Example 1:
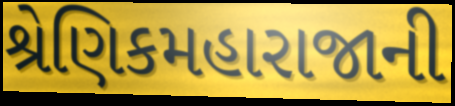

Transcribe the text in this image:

શ્રેણિકમહારાજાની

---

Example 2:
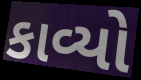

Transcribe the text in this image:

કાવ્યો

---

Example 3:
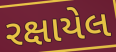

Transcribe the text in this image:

રક્ષાયેલ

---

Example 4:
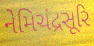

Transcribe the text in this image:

નેમિચંદ્રસૂરિ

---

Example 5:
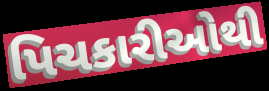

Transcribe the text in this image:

પિચકારીઓથી